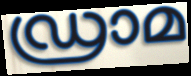
ഡ്രാമ